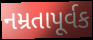
નમ્રતાપૂર્વક